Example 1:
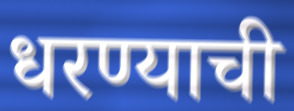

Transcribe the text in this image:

धरण्याची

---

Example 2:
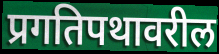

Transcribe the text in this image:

प्रगतिपथावरील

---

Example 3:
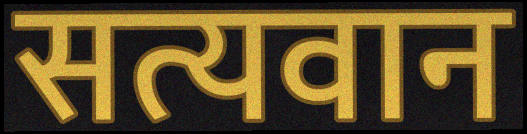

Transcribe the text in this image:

सत्यवान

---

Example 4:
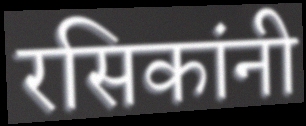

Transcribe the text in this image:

रसिकांनी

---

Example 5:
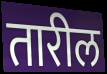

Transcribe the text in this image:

तारील